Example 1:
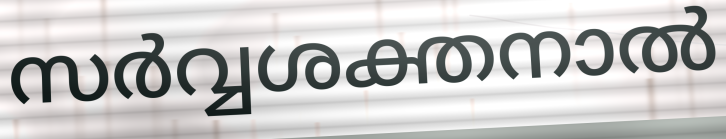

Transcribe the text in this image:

സർവ്വശക്തനാൽ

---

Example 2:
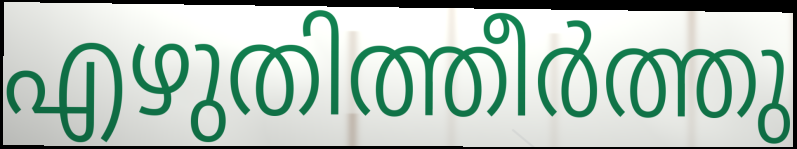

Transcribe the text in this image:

എഴുതിത്തീർത്തു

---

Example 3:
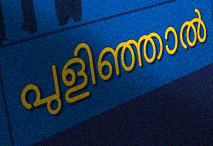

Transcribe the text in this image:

പുളിഞ്ഞാൽ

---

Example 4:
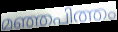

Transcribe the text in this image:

മഞ്ഞപിത്തം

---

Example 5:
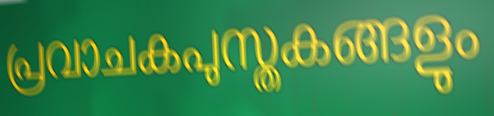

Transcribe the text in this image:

പ്രവാചകപുസ്തകങ്ങളും